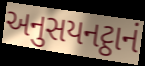
અનુસયનટ્ઠાનં